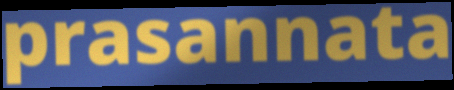
prasannata